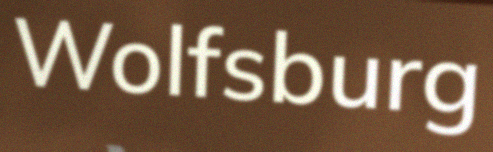
Wolfsburg